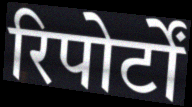
रिपोर्टों